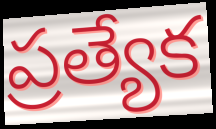
ప్రత్యేక